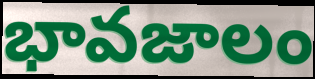
భావజాలం